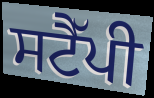
ਸਟੈੱਪੀ